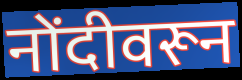
नोंदीवरून